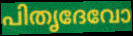
പിതൃദേവോ